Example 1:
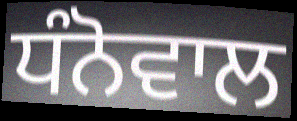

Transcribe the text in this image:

ਧੰਨੋਵਾਲ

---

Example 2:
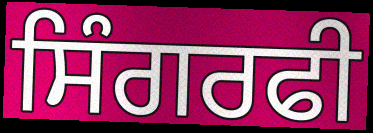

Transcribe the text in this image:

ਸਿੰਗਰਫੀ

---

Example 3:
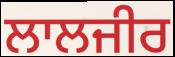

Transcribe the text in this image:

ਲਾਲਜੀਰ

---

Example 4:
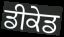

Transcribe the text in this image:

ਡੀਕੇਡ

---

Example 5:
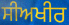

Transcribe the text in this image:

ਸੀਅਖੀਰ